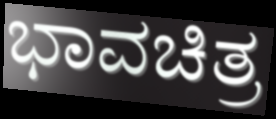
ಭಾವಚಿತ್ರ